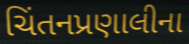
ચિંતનપ્રણાલીના